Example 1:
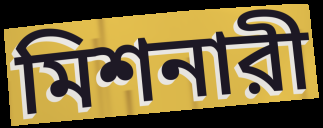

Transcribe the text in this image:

মিশনারী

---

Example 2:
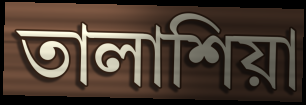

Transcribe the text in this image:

তালাশিয়া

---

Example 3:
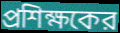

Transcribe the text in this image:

প্রশিক্ষকের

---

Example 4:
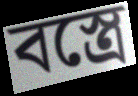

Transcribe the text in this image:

বস্ত্রে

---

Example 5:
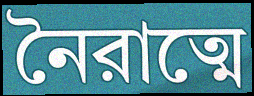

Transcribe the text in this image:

নৈরাত্মে